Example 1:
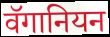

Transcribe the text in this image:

वॅगानियन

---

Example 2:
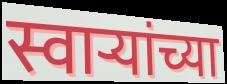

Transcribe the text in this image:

स्वाऱ्यांच्या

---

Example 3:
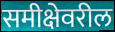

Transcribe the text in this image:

समीक्षेवरील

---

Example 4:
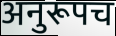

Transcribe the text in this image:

अनुरूपच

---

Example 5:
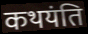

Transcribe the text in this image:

कथयंति